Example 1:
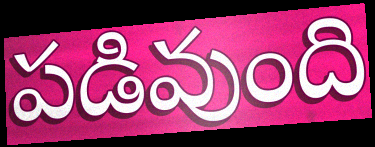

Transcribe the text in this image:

పడివుంది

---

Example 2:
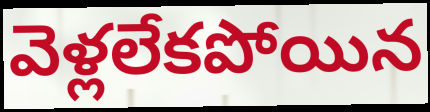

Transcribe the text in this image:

వెళ్లలేకపోయిన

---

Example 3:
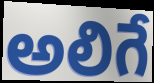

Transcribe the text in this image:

అలిగే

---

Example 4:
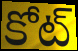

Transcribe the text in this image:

కోట్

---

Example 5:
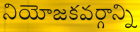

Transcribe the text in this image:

నియోజకవర్గాన్ని